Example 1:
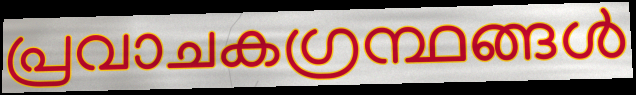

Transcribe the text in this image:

പ്രവാചകഗ്രന്ഥങ്ങൾ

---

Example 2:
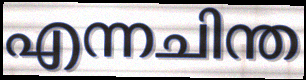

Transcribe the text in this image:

എന്നചിന്ത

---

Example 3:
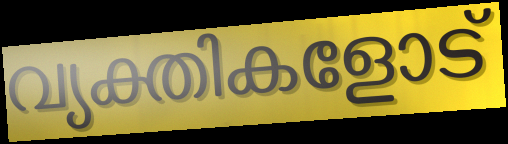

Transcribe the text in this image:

വ്യക്തികളോട്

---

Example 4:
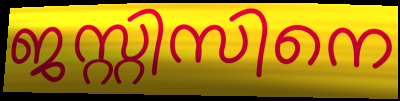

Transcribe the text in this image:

ജസ്റ്റിസിനെ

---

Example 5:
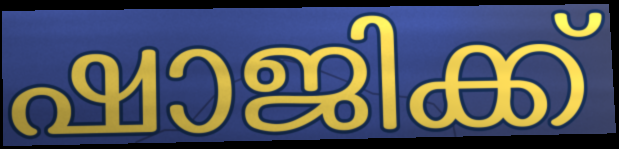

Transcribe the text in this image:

ഷാജിക്ക്